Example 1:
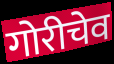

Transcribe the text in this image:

गोरीचेव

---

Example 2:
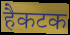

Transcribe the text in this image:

हैकटक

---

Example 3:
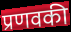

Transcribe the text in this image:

प्रणवकी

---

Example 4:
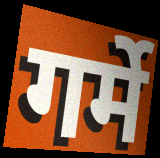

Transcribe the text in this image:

गर्मे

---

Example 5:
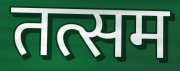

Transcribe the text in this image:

तत्सम